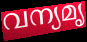
വന്യമൃ